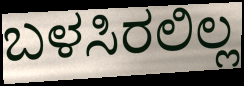
ಬಳಸಿರಲಿಲ್ಲ